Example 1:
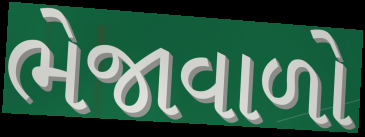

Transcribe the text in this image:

ભેજાવાળો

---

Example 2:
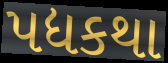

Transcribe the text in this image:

પદ્યકથા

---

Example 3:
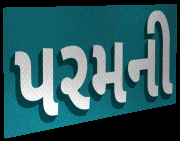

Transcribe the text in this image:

પરમની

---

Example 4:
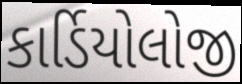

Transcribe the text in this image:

કાર્ડિયોલોજી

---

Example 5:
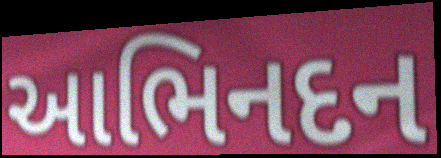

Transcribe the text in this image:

આભિનદન